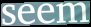
seem